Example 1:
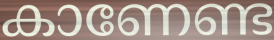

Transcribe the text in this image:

കാണേണ്ട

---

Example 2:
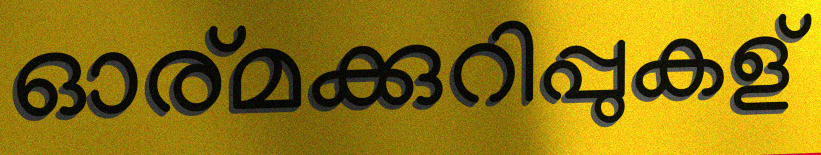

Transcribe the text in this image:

ഓര്മക്കുറിപ്പുകള്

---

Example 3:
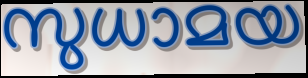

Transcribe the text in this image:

സുധാമയ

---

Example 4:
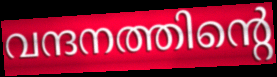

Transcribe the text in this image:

വന്ദനത്തിന്റെ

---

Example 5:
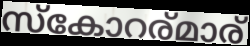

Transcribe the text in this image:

സ്കോറര്മാര്